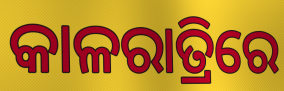
କାଳରାତ୍ରିରେ